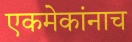
एकमेकांनाच